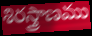
శిరస్త్రాణము